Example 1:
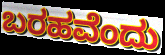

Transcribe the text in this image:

ಬರಹವೆಂದು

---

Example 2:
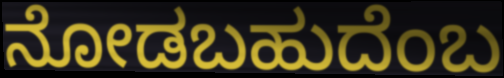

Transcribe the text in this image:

ನೋಡಬಹುದೆಂಬ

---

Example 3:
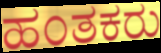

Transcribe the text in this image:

ಹಂತಕರು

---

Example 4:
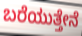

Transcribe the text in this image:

ಬರೆಯುತ್ತೇನೆ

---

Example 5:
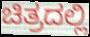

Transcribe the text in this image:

ಚಿತ್ರದಲ್ಲಿ